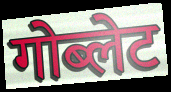
गोब्लेट